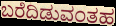
ಬರೆದಿಡುವಂತಹ